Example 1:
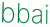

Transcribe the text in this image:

bbai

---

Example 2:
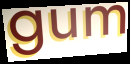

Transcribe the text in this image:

gum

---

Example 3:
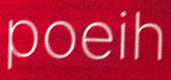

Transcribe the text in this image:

poeih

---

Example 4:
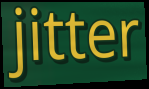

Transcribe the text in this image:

jitter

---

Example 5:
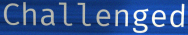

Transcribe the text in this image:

Challenged